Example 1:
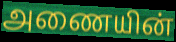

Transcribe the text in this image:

அணையின்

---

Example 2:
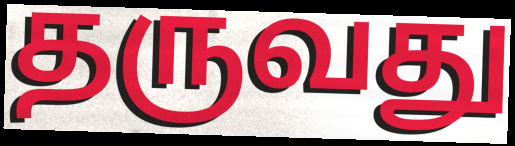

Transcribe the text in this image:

தருவது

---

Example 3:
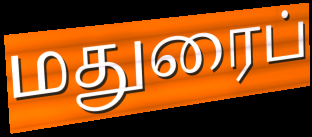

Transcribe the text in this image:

மதுரைப்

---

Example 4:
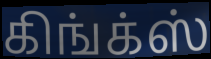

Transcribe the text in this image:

கிங்க்ஸ்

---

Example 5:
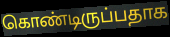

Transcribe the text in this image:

கொண்டிருப்பதாக